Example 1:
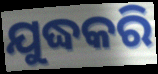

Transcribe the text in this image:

ଯୁଦ୍ଧକରି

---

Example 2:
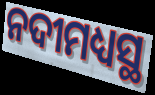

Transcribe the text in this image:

ନଦୀମଧ୍ୟସ୍ଥ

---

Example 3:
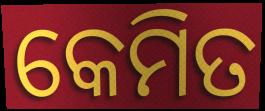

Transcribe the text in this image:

କେମିତ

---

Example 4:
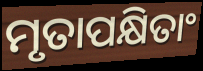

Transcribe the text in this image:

ମୃତାପକ୍ଷିତାଂ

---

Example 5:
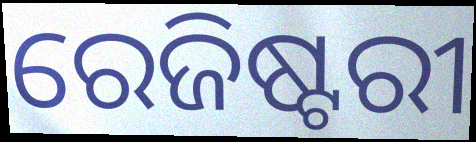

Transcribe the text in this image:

ରେଜିଷ୍ଟରୀ